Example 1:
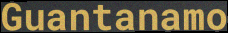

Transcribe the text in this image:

Guantanamo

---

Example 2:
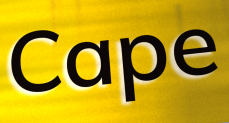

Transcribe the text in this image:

Cape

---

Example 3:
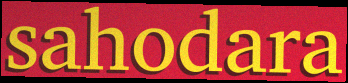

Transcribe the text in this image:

sahodara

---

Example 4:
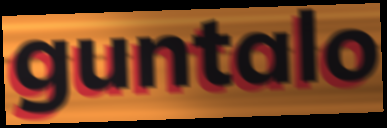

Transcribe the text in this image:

guntalo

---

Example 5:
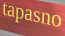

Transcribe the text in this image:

tapasno